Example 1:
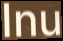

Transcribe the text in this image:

Inu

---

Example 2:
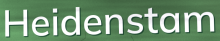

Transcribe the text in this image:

Heidenstam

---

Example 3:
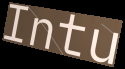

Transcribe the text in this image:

Intu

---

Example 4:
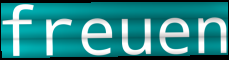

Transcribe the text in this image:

freuen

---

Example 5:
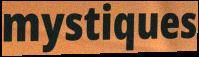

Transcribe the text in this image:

mystiques